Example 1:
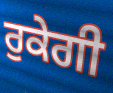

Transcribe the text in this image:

ਰੁਕੇਗੀ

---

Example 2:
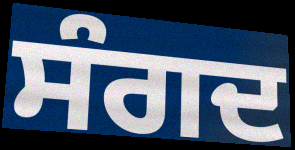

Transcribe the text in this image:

ਸੰਗਦ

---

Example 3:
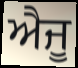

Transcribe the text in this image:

ਐਜੂ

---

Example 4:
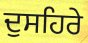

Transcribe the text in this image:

ਦੁਸਹਿਰੇ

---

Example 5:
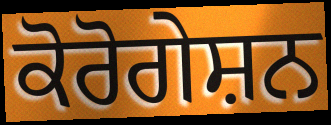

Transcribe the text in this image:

ਕੋਰੋਗੇਸ਼ਨ